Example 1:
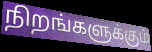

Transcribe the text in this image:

நிறங்களுக்கும்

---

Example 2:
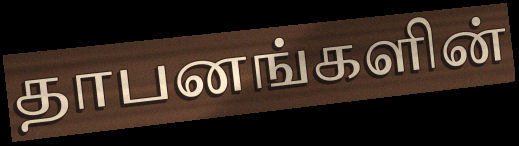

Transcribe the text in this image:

தாபனங்களின்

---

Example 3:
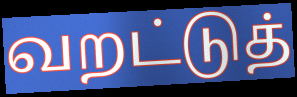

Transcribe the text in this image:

வறட்டுத்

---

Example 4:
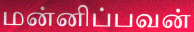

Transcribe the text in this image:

மன்னிப்பவன்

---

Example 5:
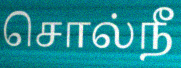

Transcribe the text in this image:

சொல்நீ